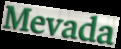
Mevada